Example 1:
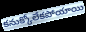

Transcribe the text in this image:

కనుక్కోలేకపోయాయి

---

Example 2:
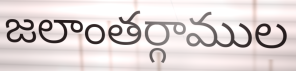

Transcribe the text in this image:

జలాంతర్గాముల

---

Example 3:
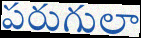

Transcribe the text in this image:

పరుగులా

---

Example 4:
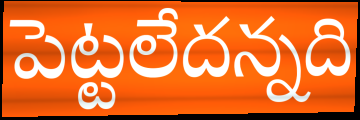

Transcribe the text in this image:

పెట్టలేదన్నది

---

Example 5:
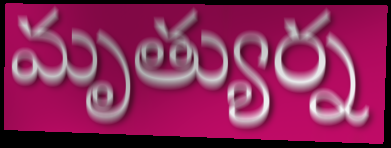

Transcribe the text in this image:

మృత్యుర్న